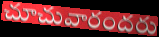
చూచువారందరు